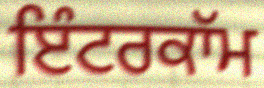
ਇੰਟਰਕਾੱਮ